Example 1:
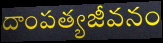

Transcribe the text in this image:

దాంపత్యజీవనం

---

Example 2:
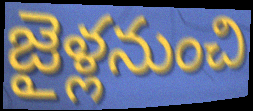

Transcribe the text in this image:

జైళ్లనుంచి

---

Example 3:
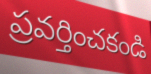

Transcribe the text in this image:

ప్రవర్తించకండి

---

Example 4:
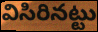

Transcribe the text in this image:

విసిరినట్టు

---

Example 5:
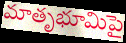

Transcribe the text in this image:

మాతృభూమిపై